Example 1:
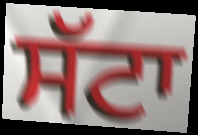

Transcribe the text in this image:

ਸੱਟਾ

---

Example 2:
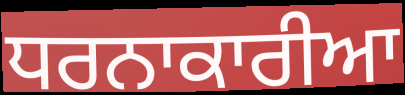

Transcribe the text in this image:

ਧਰਨਾਕਾਰੀਆ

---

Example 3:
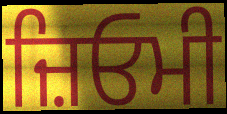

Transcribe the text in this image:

ਜ਼ਿਓਮੀ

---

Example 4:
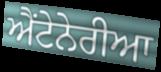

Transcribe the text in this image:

ਐਂਟੇਨੇਰੀਆ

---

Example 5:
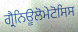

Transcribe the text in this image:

ਗ੍ਰੈਨਿਊਲੋਮੇਟੋਸਿਸ